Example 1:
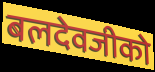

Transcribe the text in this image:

बलदेवजीको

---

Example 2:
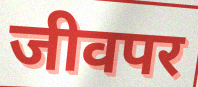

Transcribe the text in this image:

जीवपर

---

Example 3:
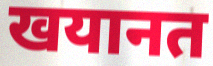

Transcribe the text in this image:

खयानत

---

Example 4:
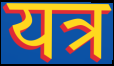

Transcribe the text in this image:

यत्र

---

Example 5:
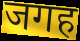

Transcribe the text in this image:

जगह